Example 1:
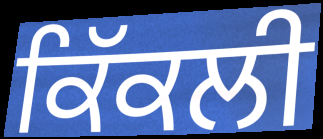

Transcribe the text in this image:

ਕਿੱਕਲੀ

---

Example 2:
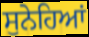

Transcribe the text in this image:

ਸੁਨੇਹਿਆਂ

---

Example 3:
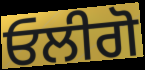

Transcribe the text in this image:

ਓਲੀਗੋ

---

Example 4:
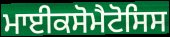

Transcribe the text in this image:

ਮਾਈਕਸੋਮੈਟੋਸਿਸ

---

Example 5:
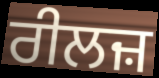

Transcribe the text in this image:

ਰੀਲਜ਼